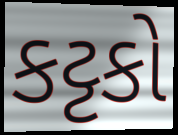
કટ્ટકો